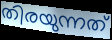
തിരയുന്നത്